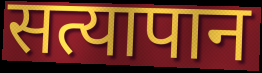
सत्यापान